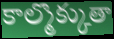
కాల్మొక్కుతా